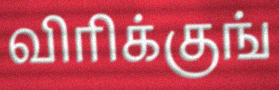
விரிக்குங்